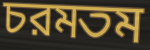
চরমতম